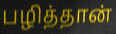
பழித்தான்